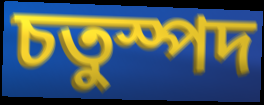
চতুস্পদ